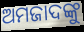
ଅମଜାଦଙ୍କୁ